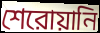
শেরোয়ানি